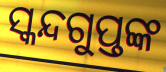
ସ୍କନ୍ଦଗୁପ୍ତଙ୍କ